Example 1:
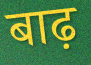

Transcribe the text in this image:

बाढ़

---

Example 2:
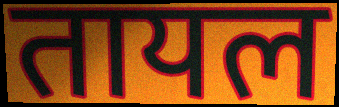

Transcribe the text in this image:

तायल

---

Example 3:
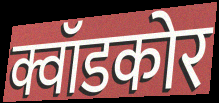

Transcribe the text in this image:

क्वॉडकोर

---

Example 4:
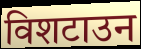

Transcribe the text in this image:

विशटाउन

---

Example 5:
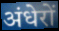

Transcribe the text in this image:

अंधेरों